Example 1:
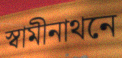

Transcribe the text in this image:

স্বামীনাথনে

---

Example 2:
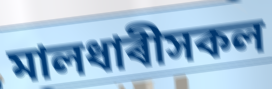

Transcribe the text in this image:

মালধাৰীসকল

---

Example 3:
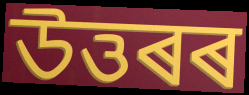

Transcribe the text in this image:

উত্তৰৰ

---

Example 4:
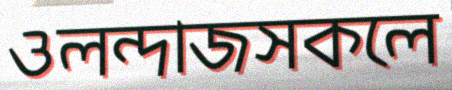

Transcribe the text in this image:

ওলন্দাজসকলে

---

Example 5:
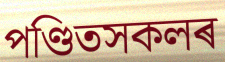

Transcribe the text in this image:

পণ্ডিতসকলৰ